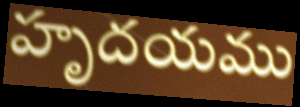
హృదయము